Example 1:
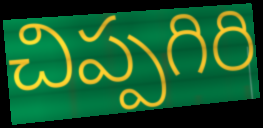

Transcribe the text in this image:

చిప్పగిరి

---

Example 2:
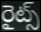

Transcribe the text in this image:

రైట్స్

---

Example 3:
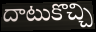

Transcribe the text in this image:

దాటుకొచ్చి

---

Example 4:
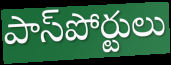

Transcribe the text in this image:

పాస్‌పోర్టులు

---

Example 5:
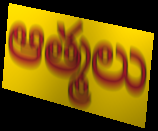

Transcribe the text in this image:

ఆత్మలు